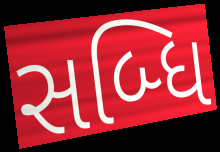
સબ્ધિ